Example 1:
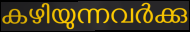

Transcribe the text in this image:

കഴിയുന്നവർക്കു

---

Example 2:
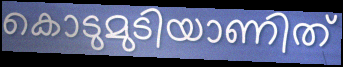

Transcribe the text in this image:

കൊടുമുടിയാണിത്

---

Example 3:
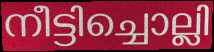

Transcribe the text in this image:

നീട്ടിച്ചൊല്ലി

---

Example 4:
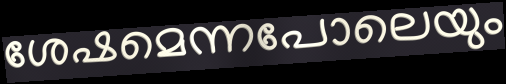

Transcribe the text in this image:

ശേഷമെന്നപോലെയും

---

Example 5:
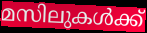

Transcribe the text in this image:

മസിലുകൾക്ക്